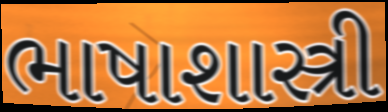
ભાષાશાસ્ત્રી